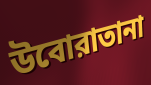
উবোরাতানা